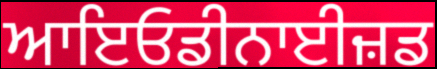
ਆਇਓਡੀਨਾਈਜ਼ਡ